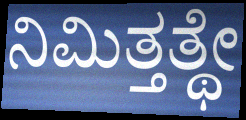
ನಿಮಿತ್ತತ್ಥೇ